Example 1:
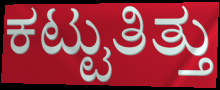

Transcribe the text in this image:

ಕಟ್ಟುತಿತ್ತು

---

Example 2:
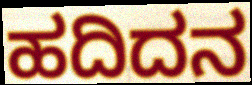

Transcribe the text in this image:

ಹದಿದನ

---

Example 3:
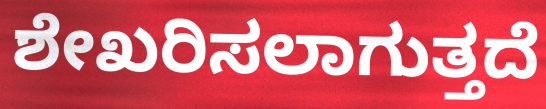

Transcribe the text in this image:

ಶೇಖರಿಸಲಾಗುತ್ತದೆ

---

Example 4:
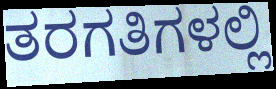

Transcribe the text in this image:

ತರಗತಿಗಳಲ್ಲಿ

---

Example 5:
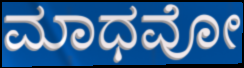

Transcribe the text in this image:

ಮಾಧವೋ